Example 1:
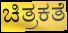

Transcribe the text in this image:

ಚಿತ್ರಕತೆ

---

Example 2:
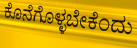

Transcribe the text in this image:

ಕೊನೆಗೊಳ್ಳಬೇಕೆಂದು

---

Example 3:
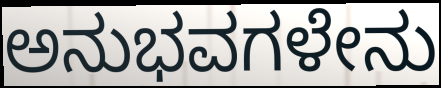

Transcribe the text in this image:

ಅನುಭವಗಳೇನು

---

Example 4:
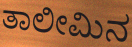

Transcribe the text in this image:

ತಾಲೀಮಿನ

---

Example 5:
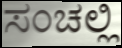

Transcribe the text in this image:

ಸಂಚಲ್ಲಿ